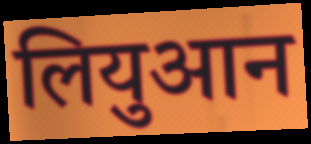
लियुआन